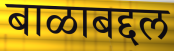
बाळाबद्दल